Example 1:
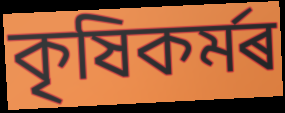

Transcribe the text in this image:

কৃষিকৰ্মৰ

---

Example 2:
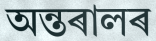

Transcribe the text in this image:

অন্তৰালৰ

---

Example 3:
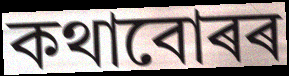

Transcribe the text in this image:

কথাবোৰৰ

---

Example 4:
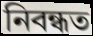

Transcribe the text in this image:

নিবন্ধত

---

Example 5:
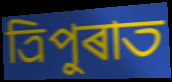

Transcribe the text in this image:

ত্ৰিপুৰাত